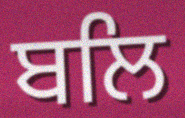
ਬਲਿ